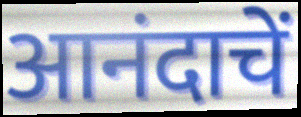
आनंदाचें